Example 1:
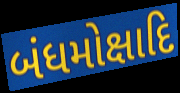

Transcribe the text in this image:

બંધમોક્ષાદિ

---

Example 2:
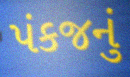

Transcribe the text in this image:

પંકજનું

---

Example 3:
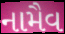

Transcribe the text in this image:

નામૈવ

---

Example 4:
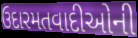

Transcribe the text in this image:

ઉદારમતવાદીઓની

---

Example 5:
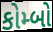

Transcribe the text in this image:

કોમ્બો